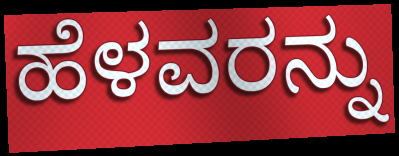
ಹೆಳವರನ್ನು